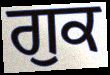
ਗੁਕ